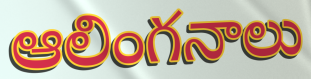
ఆలింగనాలు